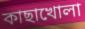
কাছাখোলা